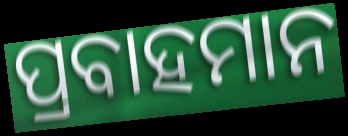
ପ୍ରବାହମାନ